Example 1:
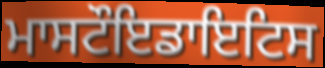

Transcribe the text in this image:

ਮਾਸਟੌਇਡਾਇਟਿਸ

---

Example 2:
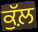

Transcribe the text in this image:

ਕੁੱਲ਼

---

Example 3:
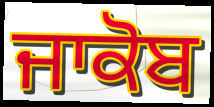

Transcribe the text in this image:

ਜਾਕੋਬ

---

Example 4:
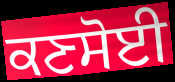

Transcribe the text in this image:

ਕਣਸੋਈ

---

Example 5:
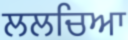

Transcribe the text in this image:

ਲਲਚਿਆ